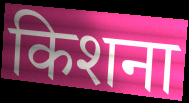
किशना